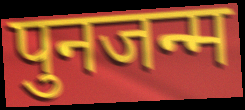
पुनजन्म